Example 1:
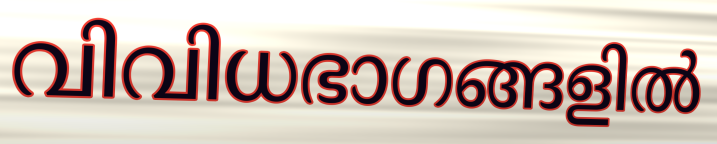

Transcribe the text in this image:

വിവിധഭാഗങ്ങളിൽ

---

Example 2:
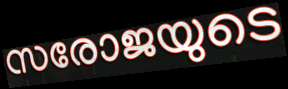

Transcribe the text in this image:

സരോജയുടെ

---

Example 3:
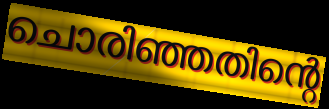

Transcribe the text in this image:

ചൊരിഞ്ഞതിന്റെ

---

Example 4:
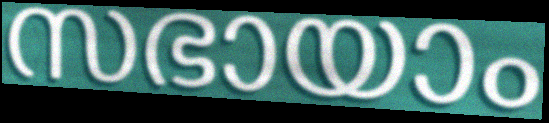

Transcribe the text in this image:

സഭായാം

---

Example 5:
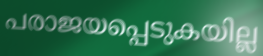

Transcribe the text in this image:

പരാജയപ്പെടുകയില്ല